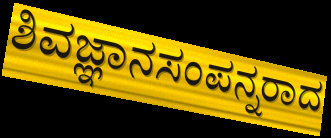
ಶಿವಜ್ಞಾನಸಂಪನ್ನರಾದ